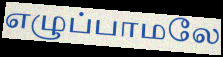
எழுப்பாமலே